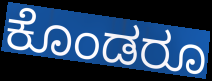
ಕೊಂಡರೂ